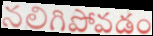
నలిగిపోవడం